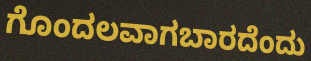
ಗೊಂದಲವಾಗಬಾರದೆಂದು